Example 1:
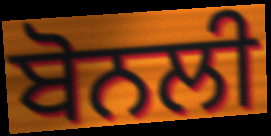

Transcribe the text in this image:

ਬੋਨਲੀ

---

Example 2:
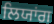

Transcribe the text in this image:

ਲਿਯਾਂਗ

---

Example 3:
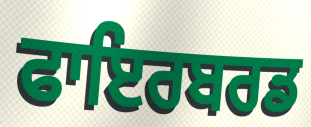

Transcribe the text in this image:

ਫਾਇਰਬਰਡ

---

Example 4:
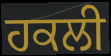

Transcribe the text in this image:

ਹਕਲੀ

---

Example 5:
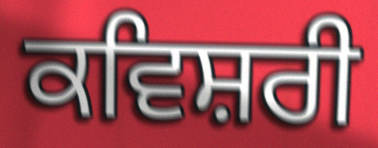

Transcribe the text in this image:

ਕਵਿਸ਼ਰੀ